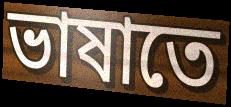
ভাষাতে